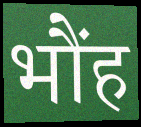
भौंह